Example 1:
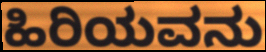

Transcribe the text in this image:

ಹಿರಿಯವನು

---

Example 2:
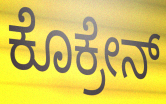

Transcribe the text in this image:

ಕೊಕ್ರೇನ್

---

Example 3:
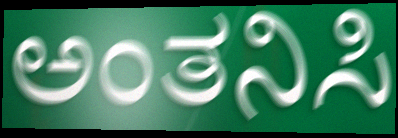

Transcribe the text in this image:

ಅಂತನಿಸಿ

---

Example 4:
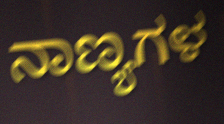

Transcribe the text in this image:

ನಾಣ್ಯಗಳ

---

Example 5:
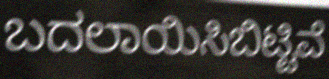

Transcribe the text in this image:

ಬದಲಾಯಿಸಿಬಿಟ್ಟಿವೆ